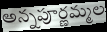
అన్నపూర్ణమ్మల